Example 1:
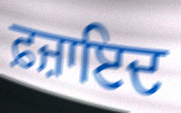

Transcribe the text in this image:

ਫ਼ਜ਼ਾਇਦ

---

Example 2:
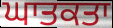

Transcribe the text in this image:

ਘਾਤਕਤਾ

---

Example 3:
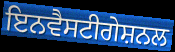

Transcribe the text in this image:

ਇਨਵੈਸਟੀਗੇਸ਼ਨਲ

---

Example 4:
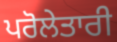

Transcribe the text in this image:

ਪਰੋਲੇਤਾਰੀ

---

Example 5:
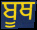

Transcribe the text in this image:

ਬੂਥ